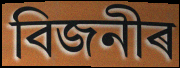
বিজনীৰ